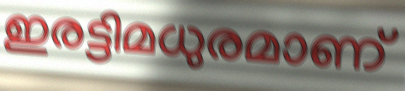
ഇരട്ടിമധുരമാണ്